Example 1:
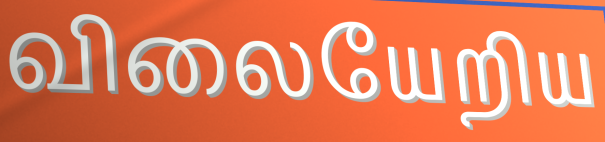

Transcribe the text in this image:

விலையேறிய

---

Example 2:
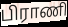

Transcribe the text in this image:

பிராணி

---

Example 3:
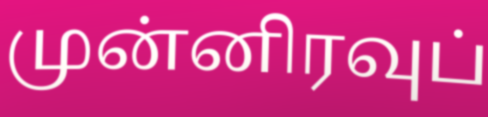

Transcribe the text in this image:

முன்னிரவுப்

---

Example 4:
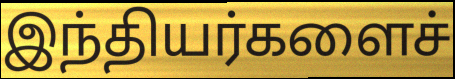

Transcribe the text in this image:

இந்தியர்களைச்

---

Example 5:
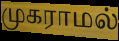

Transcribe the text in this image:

முகராமல்